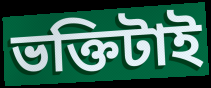
ভক্তিটাই